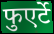
फुएर्टे